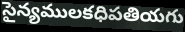
సైన్యములకధిపతియగు